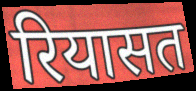
रियासत